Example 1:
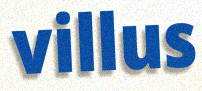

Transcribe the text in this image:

villus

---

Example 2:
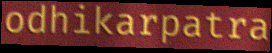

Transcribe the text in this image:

odhikarpatra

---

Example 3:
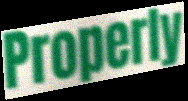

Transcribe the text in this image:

Properly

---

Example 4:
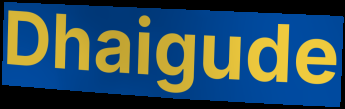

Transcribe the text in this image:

Dhaigude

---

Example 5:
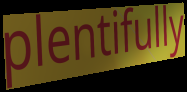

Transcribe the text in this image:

plentifully